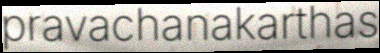
pravachanakarthas